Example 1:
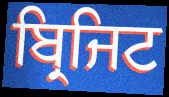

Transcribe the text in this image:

ਬ੍ਰਿਜਿਟ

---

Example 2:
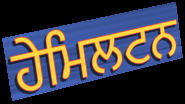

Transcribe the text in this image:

ਹੇਮਿਲਟਨ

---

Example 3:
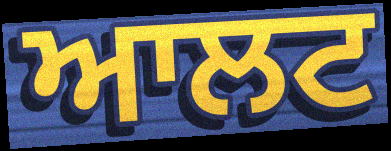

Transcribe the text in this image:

ਆਲਟ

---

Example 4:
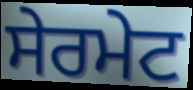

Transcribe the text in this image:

ਸੇਰਮੇਟ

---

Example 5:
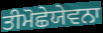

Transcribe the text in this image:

ਤੀਮੋਛੇਯੇਵਨਾ